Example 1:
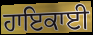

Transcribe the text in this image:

ਹਾਇਕਾਈ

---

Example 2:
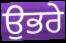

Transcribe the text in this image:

ਉਭਰੇ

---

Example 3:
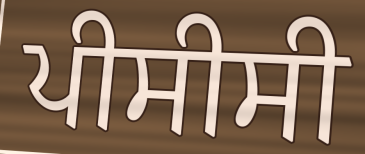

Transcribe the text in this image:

ਪੀਸੀਸੀ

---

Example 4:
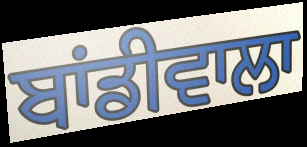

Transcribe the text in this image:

ਬਾਂਡੀਵਾਲਾ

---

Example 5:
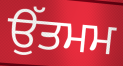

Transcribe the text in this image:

ਉੱਤਮਮ